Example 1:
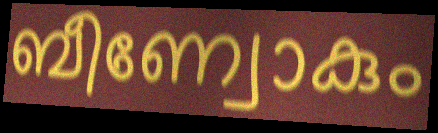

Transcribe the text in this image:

ബീണ്വോകും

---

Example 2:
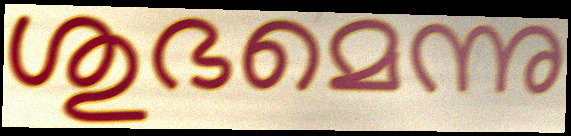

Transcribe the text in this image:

ശുഭമെന്നു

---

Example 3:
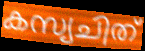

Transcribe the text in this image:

കസ്യചിത്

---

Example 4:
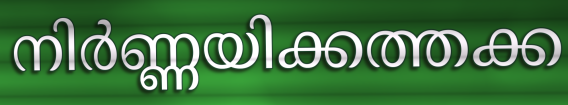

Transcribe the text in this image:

നിർണ്ണയിക്കത്തക്ക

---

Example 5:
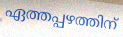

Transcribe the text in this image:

ഏത്തപ്പഴത്തിന്